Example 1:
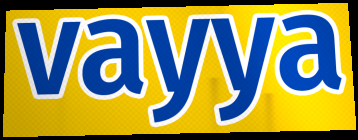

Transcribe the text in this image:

vayya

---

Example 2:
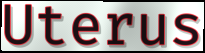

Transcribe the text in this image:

Uterus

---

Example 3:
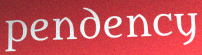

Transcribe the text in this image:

pendency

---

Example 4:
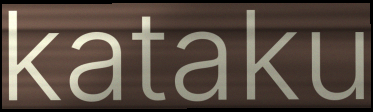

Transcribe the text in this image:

kataku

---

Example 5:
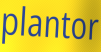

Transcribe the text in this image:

plantor